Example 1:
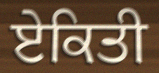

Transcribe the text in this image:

ਏਕਿਤੀ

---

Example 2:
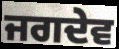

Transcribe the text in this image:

ਜਗਦੇਵ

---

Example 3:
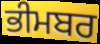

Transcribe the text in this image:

ਭੀਮਬਰ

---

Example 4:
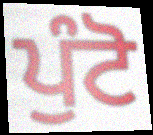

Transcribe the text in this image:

ਪੁੰਟੋ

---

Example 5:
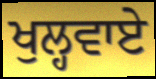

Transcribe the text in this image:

ਖੁਲ੍ਹਵਾਏ